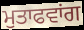
ਮੁਤਾਫਵਾਂਗ